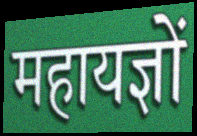
महायज्ञों